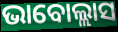
ଭାବୋଲ୍ଲାସ